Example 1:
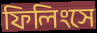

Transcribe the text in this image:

ফিলিংসে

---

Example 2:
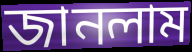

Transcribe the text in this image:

জানলাম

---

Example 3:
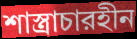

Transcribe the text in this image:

শাস্ত্রাচারহীন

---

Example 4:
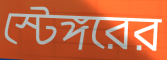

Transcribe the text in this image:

স্টেঙ্গরের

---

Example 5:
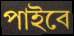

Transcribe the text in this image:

পাইবে